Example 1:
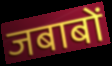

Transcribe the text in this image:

जबाबों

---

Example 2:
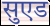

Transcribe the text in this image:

सुएड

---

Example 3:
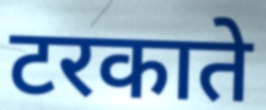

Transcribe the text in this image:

टरकाते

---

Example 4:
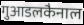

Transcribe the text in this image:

गुआडलकैनाल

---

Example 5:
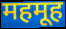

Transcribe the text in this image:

महमूह